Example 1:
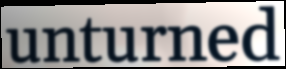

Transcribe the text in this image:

unturned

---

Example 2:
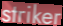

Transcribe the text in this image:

striker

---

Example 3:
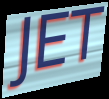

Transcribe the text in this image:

JET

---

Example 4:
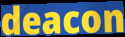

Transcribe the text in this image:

deacon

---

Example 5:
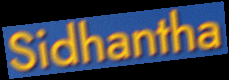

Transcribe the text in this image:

Sidhantha